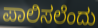
ಪಾಲಿಸಲೆಂದು